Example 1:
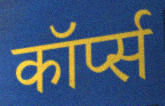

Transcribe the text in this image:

कॉर्प्स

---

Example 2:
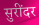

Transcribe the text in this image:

सुरींदर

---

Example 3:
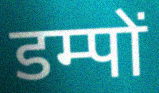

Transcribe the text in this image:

डम्पों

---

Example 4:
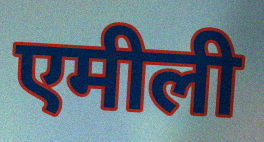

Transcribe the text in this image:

एमीली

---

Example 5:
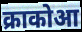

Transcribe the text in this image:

क्राकोआ